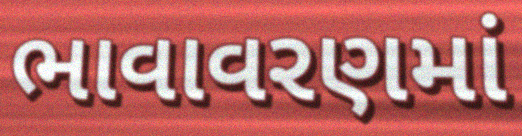
ભાવાવરણમાં